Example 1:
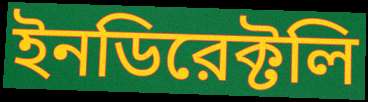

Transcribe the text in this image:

ইনডিরেক্টলি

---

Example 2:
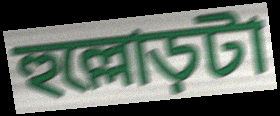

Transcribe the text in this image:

হুল্লোড়টা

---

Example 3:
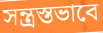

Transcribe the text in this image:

সন্ত্রস্তভাবে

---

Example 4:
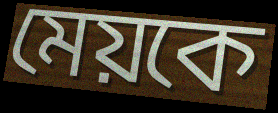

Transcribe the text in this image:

মেয়কে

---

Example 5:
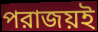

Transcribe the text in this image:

পরাজয়ই